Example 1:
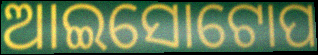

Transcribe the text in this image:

ଆଇସୋଟୋପ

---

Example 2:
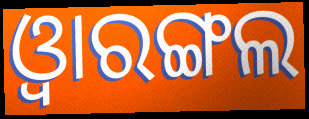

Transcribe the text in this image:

ଓ୍ବାରଙ୍ଗଲ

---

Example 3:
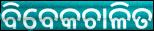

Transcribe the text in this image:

ବିବେକଚାଳିତ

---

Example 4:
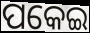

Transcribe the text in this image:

ପକେଇ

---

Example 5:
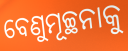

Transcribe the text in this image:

ବେଣୁମୂଚ୍ଛନାକୁ